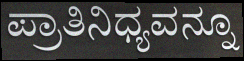
ಪ್ರಾತಿನಿಧ್ಯವನ್ನೂ